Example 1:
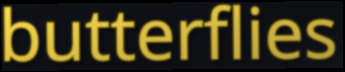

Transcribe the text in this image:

butterflies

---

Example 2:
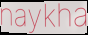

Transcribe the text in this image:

naykha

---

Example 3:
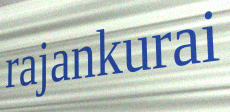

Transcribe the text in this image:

rajankurai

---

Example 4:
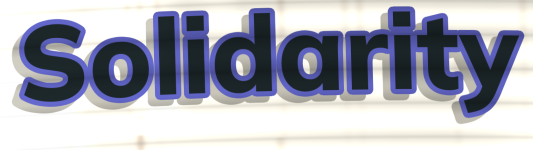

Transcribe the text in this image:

Solidarity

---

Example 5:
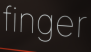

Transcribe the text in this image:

finger